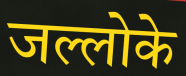
जल्लोके